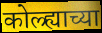
कोल्ह्याच्या